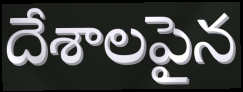
దేశాలపైన